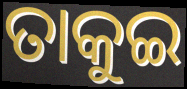
ତାକୁଇ